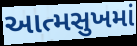
આત્મસુખમાં